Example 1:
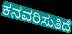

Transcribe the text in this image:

ಕನವರಿಸುತಿದೆ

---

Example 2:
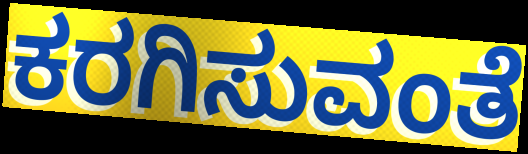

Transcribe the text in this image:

ಕರಗಿಸುವಂತೆ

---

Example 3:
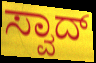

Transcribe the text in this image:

ಸ್ವಾದ್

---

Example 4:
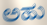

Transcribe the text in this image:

ಅಹು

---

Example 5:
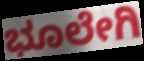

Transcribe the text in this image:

ಭೂಲೇಗಿ